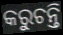
କରୁଚନ୍ତି